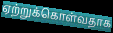
ஏற்றுக்கொள்வதாக